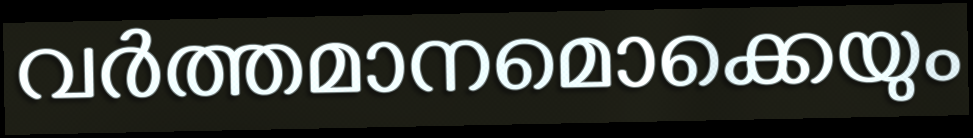
വർത്തമാനമൊക്കെയും